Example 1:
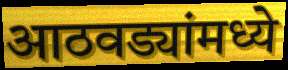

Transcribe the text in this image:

आठवड्यांमध्ये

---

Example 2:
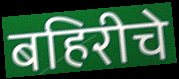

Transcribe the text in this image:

बहिरीचे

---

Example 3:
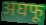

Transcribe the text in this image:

अघफू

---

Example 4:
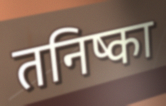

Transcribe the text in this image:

तनिष्का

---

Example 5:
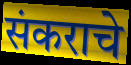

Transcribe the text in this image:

संकराचे